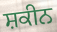
ਸ਼ਕੀਨ